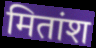
मितांश